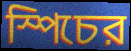
স্পিচের